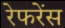
रेफरेंस